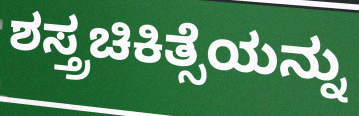
ಶಸ್ತ್ರಚಿಕಿತ್ಸೆಯನ್ನು